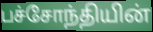
பச்சோந்தியின்